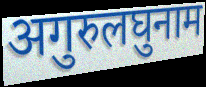
अगुरुलघुनाम